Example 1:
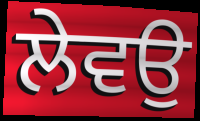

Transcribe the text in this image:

ਲੇਵਉ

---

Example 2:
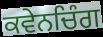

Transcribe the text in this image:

ਕਵੇਨਚਿੰਗ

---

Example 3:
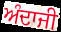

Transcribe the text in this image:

ਅੰਦਾਜੀ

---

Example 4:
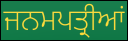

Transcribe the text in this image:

ਜਨਮਪਤ੍ਰੀਆਂ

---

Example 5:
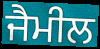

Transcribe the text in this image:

ਜੈਮੀਲ